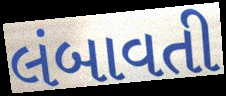
લંબાવતી